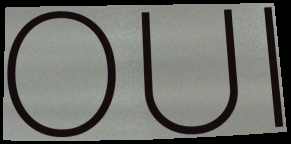
OUI